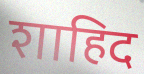
शाहिद